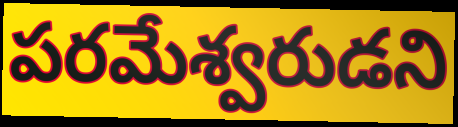
పరమేశ్వరుడని